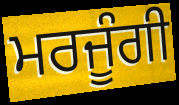
ਮਰਜੂੰਗੀ